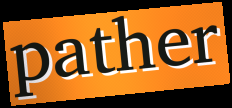
pather